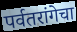
पर्वतरांगेचा